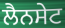
ਲੈਨਸੇਟ